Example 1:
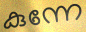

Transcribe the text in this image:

കുന്നേ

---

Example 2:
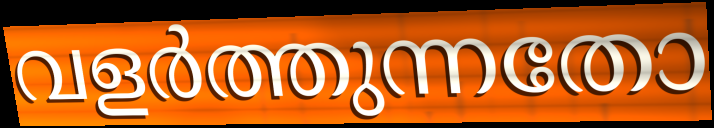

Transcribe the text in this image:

വളർത്തുന്നതോ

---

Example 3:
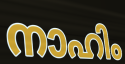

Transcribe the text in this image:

നാഹിം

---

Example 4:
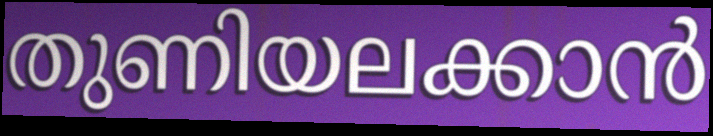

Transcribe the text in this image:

തുണിയലക്കാൻ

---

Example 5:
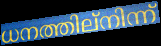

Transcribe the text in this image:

ധനത്തില്നിന്ന്